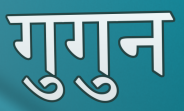
गुगुन